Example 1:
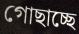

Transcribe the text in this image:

গোছাচ্ছে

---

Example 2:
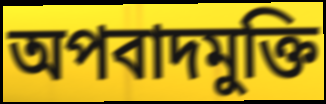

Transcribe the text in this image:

অপবাদমুক্তি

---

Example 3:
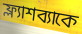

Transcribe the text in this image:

ফ্ল্যাশব্যাকে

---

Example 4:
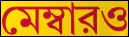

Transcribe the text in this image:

মেম্বারও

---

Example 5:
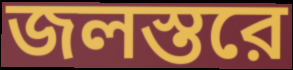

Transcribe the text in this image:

জলস্তরে